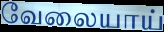
வேலையாய்